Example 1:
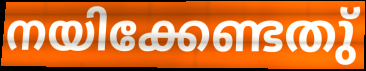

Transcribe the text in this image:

നയിക്കേണ്ടതു്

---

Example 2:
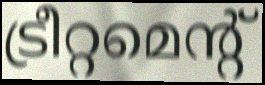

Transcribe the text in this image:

ട്രീറ്റമെന്റ്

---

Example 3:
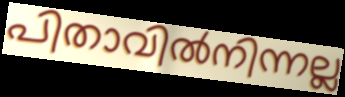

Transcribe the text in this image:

പിതാവിൽനിന്നല്ല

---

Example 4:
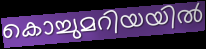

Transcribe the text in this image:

കൊച്ചുമറിയയിൽ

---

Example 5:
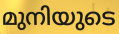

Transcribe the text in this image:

മുനിയുടെ